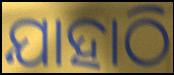
ଯାହାଠି